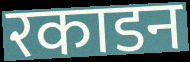
रकाडन